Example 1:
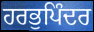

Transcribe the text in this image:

ਹਰਭੁਪਿੰਦਰ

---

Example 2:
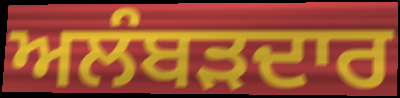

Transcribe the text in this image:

ਅਲੰਬੜਦਾਰ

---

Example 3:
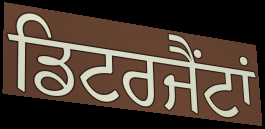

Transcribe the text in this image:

ਡਿਟਰਜੈਂਟਾਂ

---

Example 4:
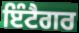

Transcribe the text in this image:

ਇੰਟੈਗਰ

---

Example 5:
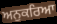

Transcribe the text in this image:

ਅਨੁਕਰਿਆ